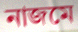
নাজমে